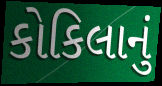
કોકિલાનું